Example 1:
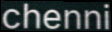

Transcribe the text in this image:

chenni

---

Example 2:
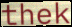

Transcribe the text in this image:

thek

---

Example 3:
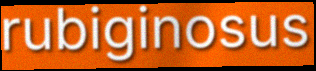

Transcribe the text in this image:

rubiginosus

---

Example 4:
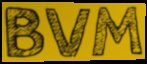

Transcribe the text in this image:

BVM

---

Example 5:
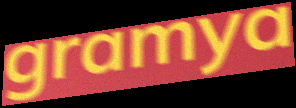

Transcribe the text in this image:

gramya